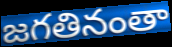
జగతినంతా